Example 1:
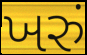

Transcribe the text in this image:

ખરું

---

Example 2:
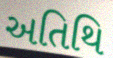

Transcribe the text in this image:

અતિથિ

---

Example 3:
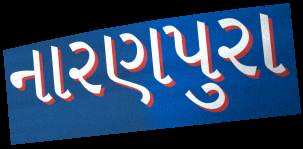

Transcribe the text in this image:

નારણપુરા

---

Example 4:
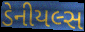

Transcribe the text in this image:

ડેનીયલ્સ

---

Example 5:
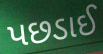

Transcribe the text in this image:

પછડાઈ